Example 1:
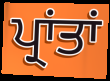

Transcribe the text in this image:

ਪ੍ਰਾਂਤਾਂ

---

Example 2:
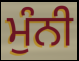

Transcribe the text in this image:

ਮੁੰਨੀ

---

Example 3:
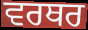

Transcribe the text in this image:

ਵਰਥਰ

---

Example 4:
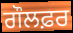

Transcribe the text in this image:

ਗੌਲਫ਼ਰ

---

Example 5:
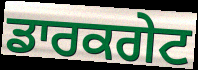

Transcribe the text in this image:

ਡਾਰਕਗੇਟ